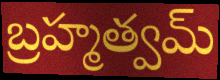
బ్రహ్మత్వమ్